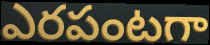
ఎరపంటగా